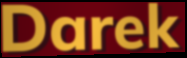
Darek